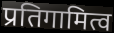
प्रतिगामित्व